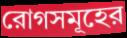
রোগসমূহের